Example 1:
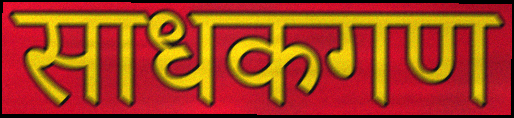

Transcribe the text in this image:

साधकगण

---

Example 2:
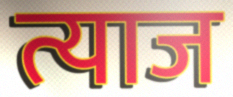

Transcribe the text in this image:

त्याज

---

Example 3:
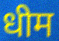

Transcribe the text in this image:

धीम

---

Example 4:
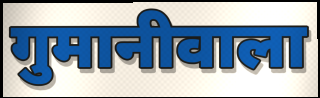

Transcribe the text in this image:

गुमानीवाला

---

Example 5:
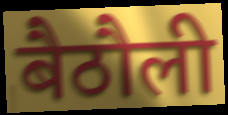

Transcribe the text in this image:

बैठौली